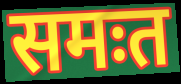
समःत